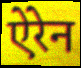
ऐरेन